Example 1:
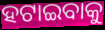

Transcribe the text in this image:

ହଟାଇବାକୁ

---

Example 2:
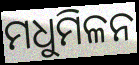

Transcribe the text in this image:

ମଧୁମିଳନ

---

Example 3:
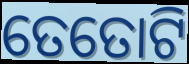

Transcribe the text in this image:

ତେତୋଟି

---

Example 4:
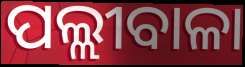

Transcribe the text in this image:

ପଲ୍ଲୀବାଳା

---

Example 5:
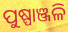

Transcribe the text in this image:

ପୁଷ୍ପାଞ୍ଜଳି